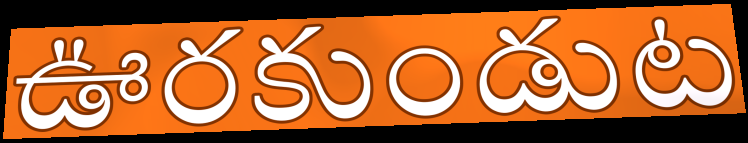
ఊరకుండుట